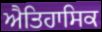
ਐਤਿਹਾਸਿਕ